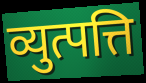
व्युत्पत्ति